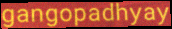
gangopadhyay